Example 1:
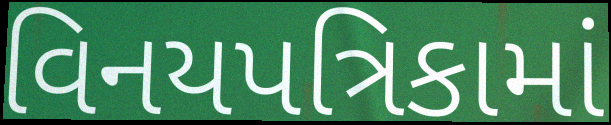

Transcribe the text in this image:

વિનયપત્રિકામાં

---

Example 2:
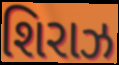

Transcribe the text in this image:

શિરાઝ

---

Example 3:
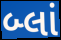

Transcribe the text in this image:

બ્લાં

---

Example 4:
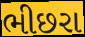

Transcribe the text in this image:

ભીછરા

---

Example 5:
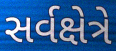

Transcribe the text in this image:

સર્વક્ષેત્રે